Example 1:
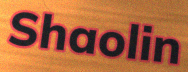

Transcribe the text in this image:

Shaolin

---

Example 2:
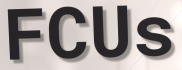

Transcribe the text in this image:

FCUs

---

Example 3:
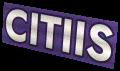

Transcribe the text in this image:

CITIIS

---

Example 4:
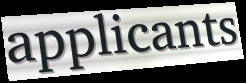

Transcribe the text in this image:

applicants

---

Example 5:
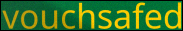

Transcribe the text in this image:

vouchsafed